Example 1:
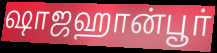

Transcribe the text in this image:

ஷாஜஹான்பூர்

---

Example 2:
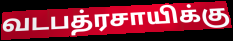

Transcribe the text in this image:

வடபத்ரசாயிக்கு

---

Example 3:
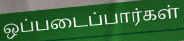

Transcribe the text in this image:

ஒப்படைப்பார்கள்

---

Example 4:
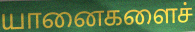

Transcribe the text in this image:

யானைகளைச்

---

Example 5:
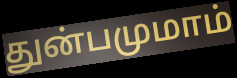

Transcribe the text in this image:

துன்பமுமாம்